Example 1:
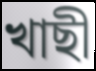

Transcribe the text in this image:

খাছী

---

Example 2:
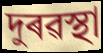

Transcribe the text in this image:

দুৰৱস্থা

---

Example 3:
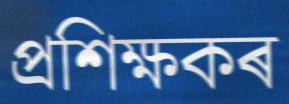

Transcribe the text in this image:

প্ৰশিক্ষকৰ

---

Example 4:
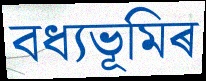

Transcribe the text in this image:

বধ্যভূমিৰ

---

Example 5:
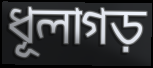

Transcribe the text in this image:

ধূলাগড়